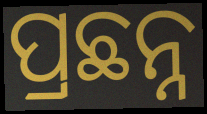
ପ୍ରଛନ୍ନ